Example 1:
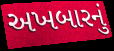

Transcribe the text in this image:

અખબારનું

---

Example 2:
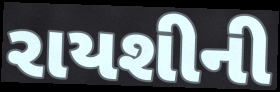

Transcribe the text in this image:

રાયશીની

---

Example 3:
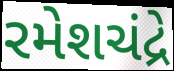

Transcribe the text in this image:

રમેશચંદ્રે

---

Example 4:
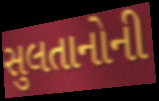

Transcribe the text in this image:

સુલતાનોની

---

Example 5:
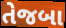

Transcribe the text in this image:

તેજબા